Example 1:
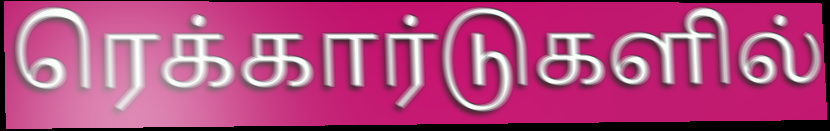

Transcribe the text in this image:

ரெக்கார்டுகளில்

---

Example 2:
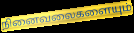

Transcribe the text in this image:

நினைவலைகளையும்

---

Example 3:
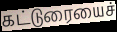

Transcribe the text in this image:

கட்டுரையைச்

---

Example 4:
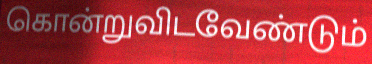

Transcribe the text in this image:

கொன்றுவிடவேண்டும்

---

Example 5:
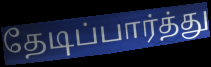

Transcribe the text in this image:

தேடிப்பார்த்து